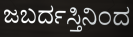
ಜಬರ್ದಸ್ತಿನಿಂದ